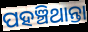
ପହଞ୍ଚିଥାନ୍ତା